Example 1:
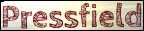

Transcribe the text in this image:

Pressfield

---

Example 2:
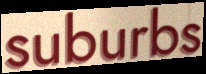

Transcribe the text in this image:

suburbs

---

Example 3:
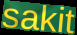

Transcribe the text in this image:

sakit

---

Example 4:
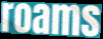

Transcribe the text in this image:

roams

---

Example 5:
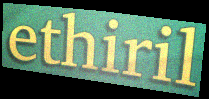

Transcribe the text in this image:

ethiril